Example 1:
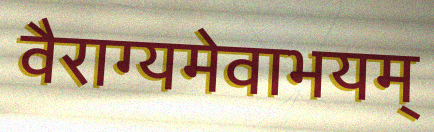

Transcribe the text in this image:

वैराग्यमेवाभयम्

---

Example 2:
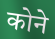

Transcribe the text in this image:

कोने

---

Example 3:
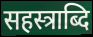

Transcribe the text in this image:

सहस्त्राब्दि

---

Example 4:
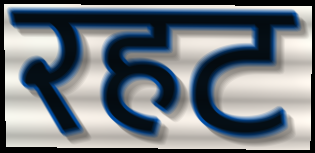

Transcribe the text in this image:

रहट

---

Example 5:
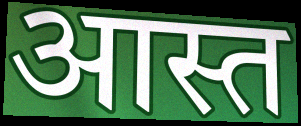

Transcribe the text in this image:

आस्त